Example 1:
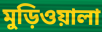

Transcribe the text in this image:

মুড়িওয়ালা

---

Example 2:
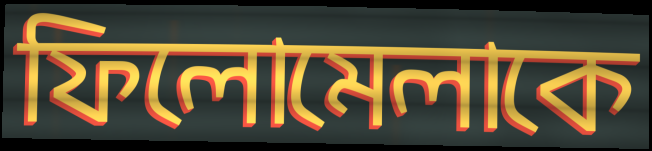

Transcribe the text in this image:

ফিলোমেলাকে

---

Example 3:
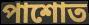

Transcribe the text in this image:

পাশোত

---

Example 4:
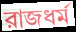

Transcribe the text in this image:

রাজধর্ম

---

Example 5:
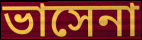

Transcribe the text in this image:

ভাসেনা